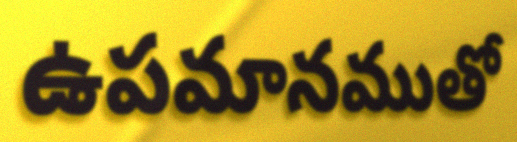
ఉపమానముతో